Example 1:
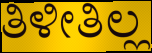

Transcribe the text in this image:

ತಿಳೀತಿಲ್ಲ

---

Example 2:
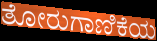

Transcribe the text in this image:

ತೋರುಗಾಣಿಕೆಯ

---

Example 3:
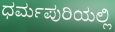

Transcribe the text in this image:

ಧರ್ಮಪುರಿಯಲ್ಲಿ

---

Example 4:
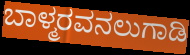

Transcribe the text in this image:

ಬಾಳ್ಮರವನಲುಗಾಡಿ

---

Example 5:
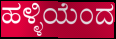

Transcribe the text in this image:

ಹಳ್ಳಿಯೆಂದ